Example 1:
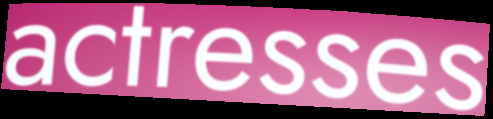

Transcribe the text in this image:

actresses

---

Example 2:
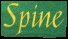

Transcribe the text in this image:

Spine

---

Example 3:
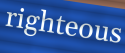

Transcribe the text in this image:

righteous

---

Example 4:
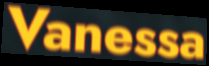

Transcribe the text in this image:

Vanessa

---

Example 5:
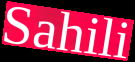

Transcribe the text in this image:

Sahili